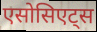
एसोसिएट्स